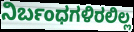
ನಿರ್ಬಂಧಗಳಿರಲಿಲ್ಲ